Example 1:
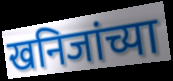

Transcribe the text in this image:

खनिजांच्या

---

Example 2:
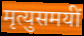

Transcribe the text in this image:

मृत्युसमयीं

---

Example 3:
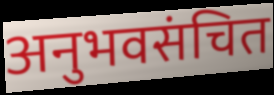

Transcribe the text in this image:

अनुभवसंचित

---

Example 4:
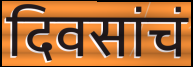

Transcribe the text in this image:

दिवसांचं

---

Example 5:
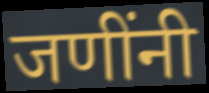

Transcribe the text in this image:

जणींनी